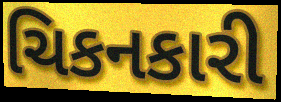
ચિકનકારી